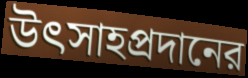
উৎসাহপ্রদানের